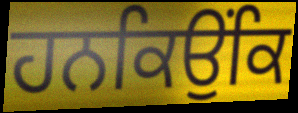
ਹਨਕਿਉਂਕਿ